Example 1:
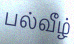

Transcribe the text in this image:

பல்வீழ்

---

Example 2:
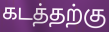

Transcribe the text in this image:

கடத்தற்கு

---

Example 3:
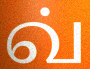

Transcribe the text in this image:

வ்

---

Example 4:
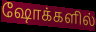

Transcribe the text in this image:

ஷோக்களில்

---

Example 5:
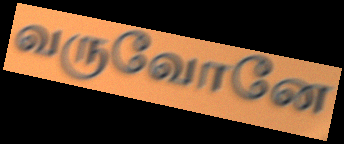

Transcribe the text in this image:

வருவோனே